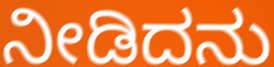
ನೀಡಿದನು